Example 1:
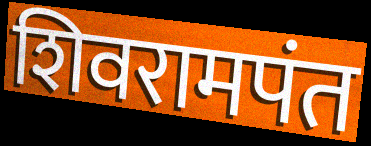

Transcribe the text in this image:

शिवरामपंत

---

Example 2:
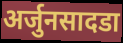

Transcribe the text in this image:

अर्जुनसादडा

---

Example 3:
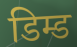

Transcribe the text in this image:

डिम्ड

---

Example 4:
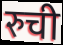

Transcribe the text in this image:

रुची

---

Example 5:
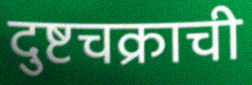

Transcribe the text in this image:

दुष्टचक्राची